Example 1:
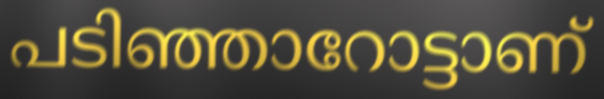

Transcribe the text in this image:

പടിഞ്ഞാറോട്ടാണ്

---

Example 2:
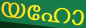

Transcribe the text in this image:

യഹോ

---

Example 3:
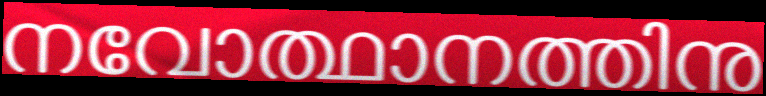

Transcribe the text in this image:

നവോത്ഥാനത്തിനു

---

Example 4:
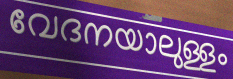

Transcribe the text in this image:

വേദനയാലുള്ളം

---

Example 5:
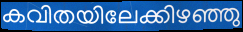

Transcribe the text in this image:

കവിതയിലേക്കിഴഞ്ഞു